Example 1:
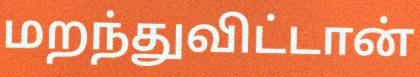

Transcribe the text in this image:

மறந்துவிட்டான்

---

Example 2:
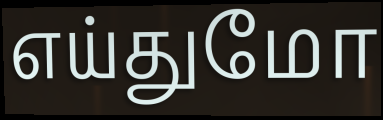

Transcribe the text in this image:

எய்துமோ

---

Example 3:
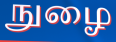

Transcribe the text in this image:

நுழை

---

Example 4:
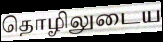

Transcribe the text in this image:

தொழிலுடைய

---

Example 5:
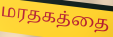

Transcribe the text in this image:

மரதகத்தை